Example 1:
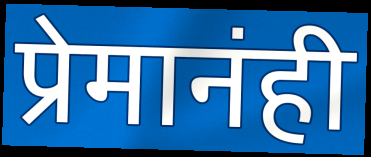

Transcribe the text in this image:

प्रेमानंही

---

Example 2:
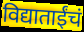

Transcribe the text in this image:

विद्याताईंचं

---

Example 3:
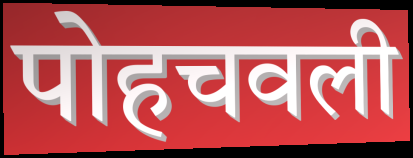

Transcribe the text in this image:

पोहचवली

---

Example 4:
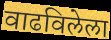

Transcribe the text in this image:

वाढविलेला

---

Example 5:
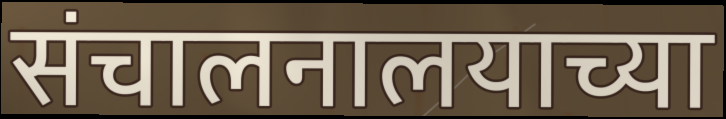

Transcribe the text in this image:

संचालनालयाच्या